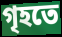
গৃহতে